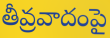
తీవ్రవాదంపై